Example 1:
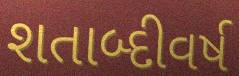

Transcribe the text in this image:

શતાબ્દીવર્ષ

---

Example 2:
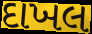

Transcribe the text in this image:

દાખલ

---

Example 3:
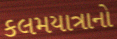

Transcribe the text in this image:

કલમયાત્રાનો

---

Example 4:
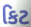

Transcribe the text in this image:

કિટ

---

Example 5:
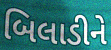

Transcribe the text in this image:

બિલાડીને